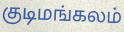
குடிமங்கலம்